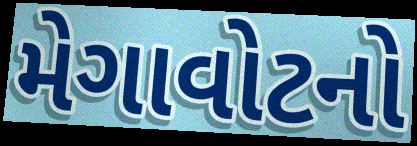
મેગાવોટનો